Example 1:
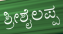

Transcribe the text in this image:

ಶ್ರೀಶೈಲಪ್ಪ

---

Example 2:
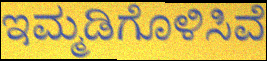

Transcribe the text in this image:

ಇಮ್ಮಡಿಗೊಳಿಸಿವೆ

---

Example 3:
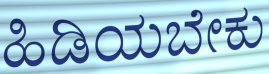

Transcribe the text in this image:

ಹಿಡಿಯಬೇಕು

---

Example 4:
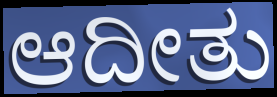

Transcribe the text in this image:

ಆದೀತು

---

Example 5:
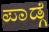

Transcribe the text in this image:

ಪಾಡ್ಗೆ